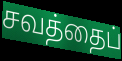
சவத்தைப்